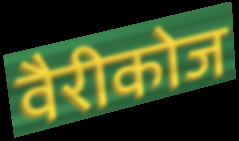
वैरीकोज